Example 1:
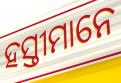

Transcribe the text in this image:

ହସ୍ତୀମାନେ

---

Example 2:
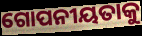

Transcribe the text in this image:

ଗୋପନୀୟତାକୁ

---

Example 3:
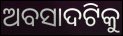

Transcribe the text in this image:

ଅବସାଦଟିକୁ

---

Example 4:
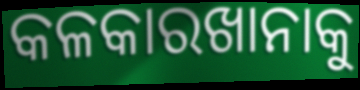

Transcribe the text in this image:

କଳକାରଖାନାକୁ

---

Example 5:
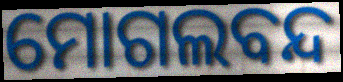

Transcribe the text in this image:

ମୋଗଲବନ୍ଦ